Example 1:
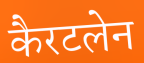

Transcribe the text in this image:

कैरटलेन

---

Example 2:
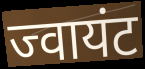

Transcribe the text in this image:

ज्वायंट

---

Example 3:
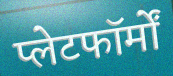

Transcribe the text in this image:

प्लेटफॉर्मों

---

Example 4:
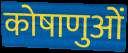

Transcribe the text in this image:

कोषाणुओं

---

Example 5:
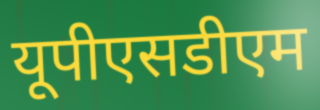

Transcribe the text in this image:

यूपीएसडीएम